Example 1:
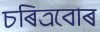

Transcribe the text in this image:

চৰিত্ৰবোৰ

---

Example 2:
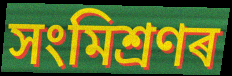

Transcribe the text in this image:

সংমিশ্ৰণৰ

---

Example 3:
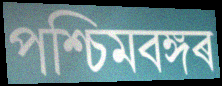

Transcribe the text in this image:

পশ্চিমবঙ্গৰ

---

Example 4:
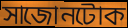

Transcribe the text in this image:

সাজোনটোক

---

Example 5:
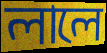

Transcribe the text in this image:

লালে